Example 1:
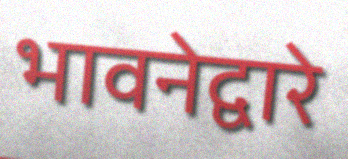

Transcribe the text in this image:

भावनेद्वारे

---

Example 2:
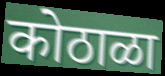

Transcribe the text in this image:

कोठाळा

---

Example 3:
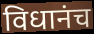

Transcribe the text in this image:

विधानंच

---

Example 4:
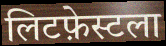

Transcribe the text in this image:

लिटफ़ेस्टला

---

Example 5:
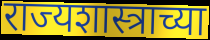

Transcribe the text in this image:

राज्यशास्त्राच्या